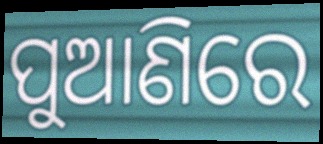
ପୁଆଣିରେ